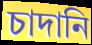
চাদানি